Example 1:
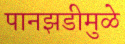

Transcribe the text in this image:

पानझडीमुळे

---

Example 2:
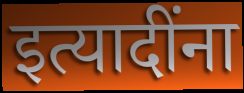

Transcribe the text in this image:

इत्यादींना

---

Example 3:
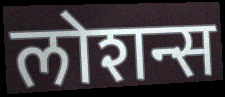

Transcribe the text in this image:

लोशन्स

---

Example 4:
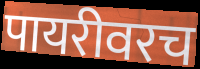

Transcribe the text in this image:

पायरीवरच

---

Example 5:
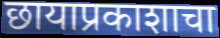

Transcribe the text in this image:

छायाप्रकाशाचा